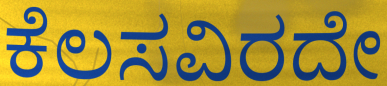
ಕೆಲಸವಿರದೇ